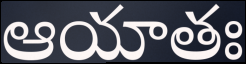
ఆయాతః